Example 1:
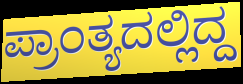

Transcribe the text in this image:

ಪ್ರಾಂತ್ಯದಲ್ಲಿದ್ದ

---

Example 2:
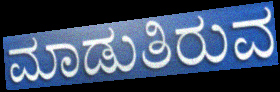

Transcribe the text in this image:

ಮಾಡುತಿರುವ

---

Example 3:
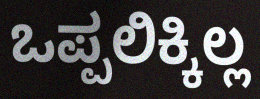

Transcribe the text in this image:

ಒಪ್ಪಲಿಕ್ಕಿಲ್ಲ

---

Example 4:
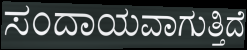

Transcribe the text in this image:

ಸಂದಾಯವಾಗುತ್ತಿದೆ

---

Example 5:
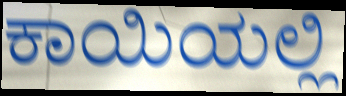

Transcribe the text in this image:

ಕಾಯಿಯಲ್ಲಿ